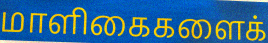
மாளிகைகளைக்